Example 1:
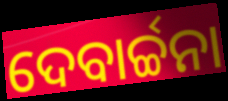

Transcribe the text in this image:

ଦେବାର୍ଚ୍ଚନା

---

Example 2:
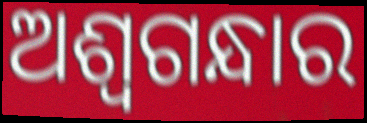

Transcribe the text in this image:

ଅଶ୍ୱଗନ୍ଧାର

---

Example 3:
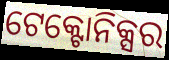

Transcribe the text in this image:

ଟେକ୍ଟୋନିକ୍ସର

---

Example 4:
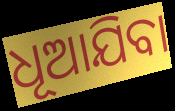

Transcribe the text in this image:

ଧୂଆଯିବା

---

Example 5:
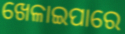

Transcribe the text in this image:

ଖେଳାଇପାରେ